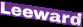
Leeward